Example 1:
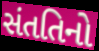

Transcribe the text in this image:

સંતતિનો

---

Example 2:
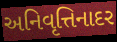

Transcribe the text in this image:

અનિવૃત્તિનાદર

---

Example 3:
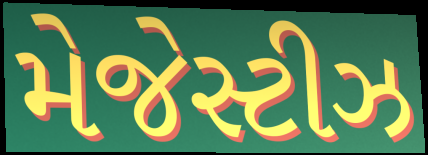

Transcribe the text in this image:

મેજેસ્ટીઝ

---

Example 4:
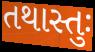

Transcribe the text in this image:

તથાસ્તુઃ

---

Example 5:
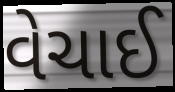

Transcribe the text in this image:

વેચાઈ